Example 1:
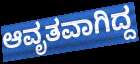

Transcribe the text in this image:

ಆವೃತವಾಗಿದ್ದ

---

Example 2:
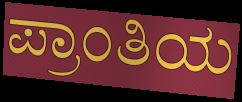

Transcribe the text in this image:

ಪ್ರಾಂತಿಯ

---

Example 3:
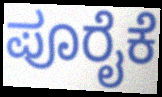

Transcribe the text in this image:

ಪೂರೈಕೆ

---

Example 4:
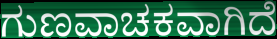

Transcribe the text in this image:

ಗುಣವಾಚಕವಾಗಿದೆ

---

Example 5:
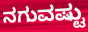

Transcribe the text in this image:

ನಗುವಷ್ಟು